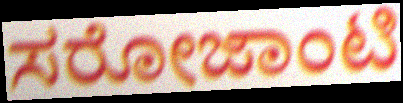
ಸರೋಜಾಂಟಿ